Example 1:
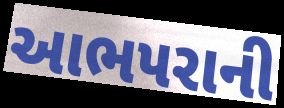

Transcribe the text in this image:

આભપરાની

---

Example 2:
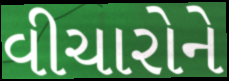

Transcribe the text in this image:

વીચારોને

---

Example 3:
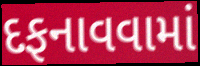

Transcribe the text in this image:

દફનાવવામાં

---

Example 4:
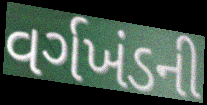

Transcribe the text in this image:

વર્ગખંડની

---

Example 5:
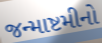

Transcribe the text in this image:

જન્માષ્ટમીનો